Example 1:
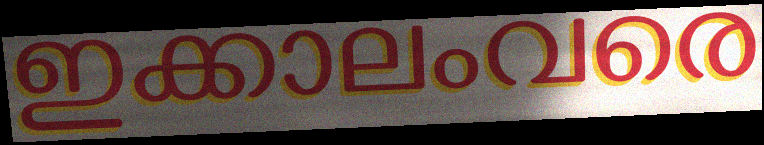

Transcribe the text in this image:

ഇക്കാലംവരെ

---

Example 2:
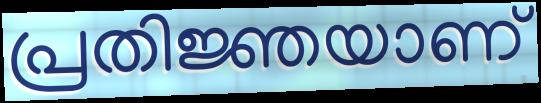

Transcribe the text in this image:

പ്രതിജ്ഞയാണ്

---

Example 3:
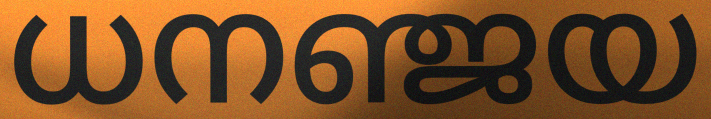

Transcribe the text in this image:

ധനഞ്ജയ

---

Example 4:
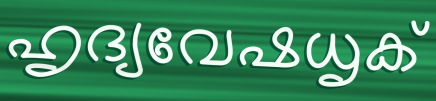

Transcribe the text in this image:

ഹൃദ്യവേഷധൃക്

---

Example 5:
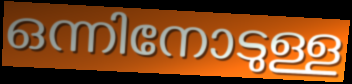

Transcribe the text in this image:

ഒന്നിനോടുള്ള